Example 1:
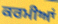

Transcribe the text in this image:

ਕਰਮੀਆਂ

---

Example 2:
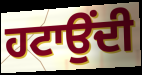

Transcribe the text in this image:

ਹਟਾਉਂਦੀ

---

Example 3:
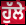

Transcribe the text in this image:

ਹੁੱਲੇ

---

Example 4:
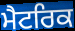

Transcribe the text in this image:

ਮੈਟਰਿਕ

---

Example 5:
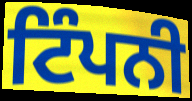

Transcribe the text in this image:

ਟਿੰਪਨੀ